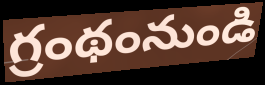
గ్రంథంనుండి